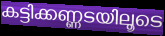
കട്ടിക്കണ്ണടയിലൂടെ